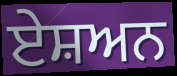
ਏਸ਼ਅਨ